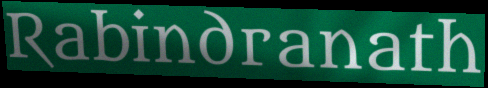
Rabindranath